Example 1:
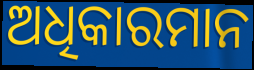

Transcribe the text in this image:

ଅଧିକାରମାନ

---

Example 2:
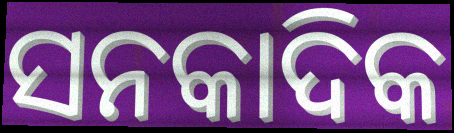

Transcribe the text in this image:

ସନକାଦିକ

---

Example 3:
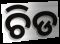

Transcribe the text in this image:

ଚିଡ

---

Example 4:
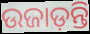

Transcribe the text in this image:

ଉଜାଡ଼ନ୍ତି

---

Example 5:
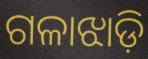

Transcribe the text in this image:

ଗଳାଝାଡ଼ି